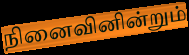
நினைவினின்றும்